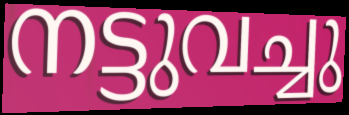
നട്ടുവച്ചു